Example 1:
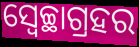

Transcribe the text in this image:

ସ୍ବେଚ୍ଛାଗ୍ରହର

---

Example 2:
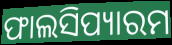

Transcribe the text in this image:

ଫାଲସିପ୍ୟାରମ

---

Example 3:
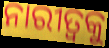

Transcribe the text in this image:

ନାରୀତ୍ୱକୁ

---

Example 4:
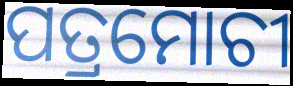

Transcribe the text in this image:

ପତ୍ରମୋଚୀ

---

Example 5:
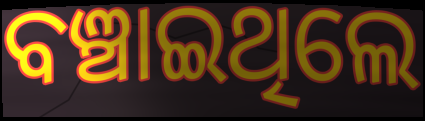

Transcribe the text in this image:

ବଞ୍ଚାଇଥିଲେ